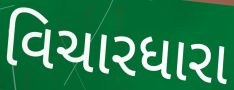
વિચારધારા